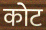
कोट